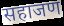
सहाजण